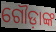
ଗୌଡ଼ାଙ୍କ